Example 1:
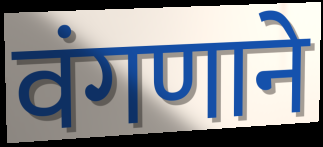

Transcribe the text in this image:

वंगणाने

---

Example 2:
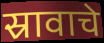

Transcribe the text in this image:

स्रावाचे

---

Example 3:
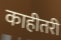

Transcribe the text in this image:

काहीतरी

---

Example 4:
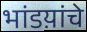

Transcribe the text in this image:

भांडय़ांचे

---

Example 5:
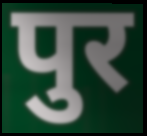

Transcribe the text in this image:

पुर